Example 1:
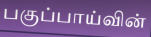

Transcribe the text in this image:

பகுப்பாய்வின்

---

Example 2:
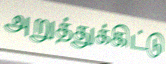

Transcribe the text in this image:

அறுத்துக்கிட்டு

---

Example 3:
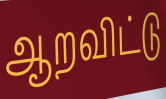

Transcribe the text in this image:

ஆறவிட்டு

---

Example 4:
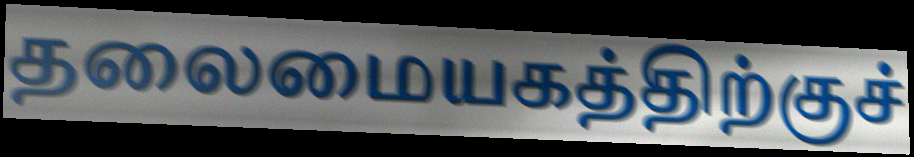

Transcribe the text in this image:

தலைமையகத்திற்குச்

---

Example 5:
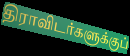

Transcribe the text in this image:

திராவிடர்களுக்குப்